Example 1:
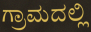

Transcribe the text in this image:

ಗ್ರಾಮದಲ್ಲಿ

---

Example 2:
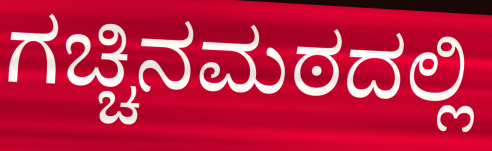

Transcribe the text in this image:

ಗಚ್ಚಿನಮಠದಲ್ಲಿ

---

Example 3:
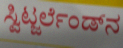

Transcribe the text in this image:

ಸ್ವಿಟ್ಜರ್ಲೆಂಡ್‌ನ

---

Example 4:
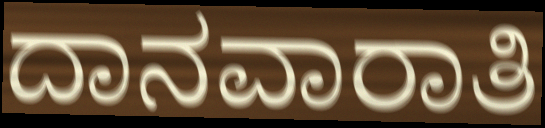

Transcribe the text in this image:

ದಾನವಾರಾತಿ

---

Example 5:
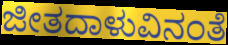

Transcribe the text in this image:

ಜೀತದಾಳುವಿನಂತೆ